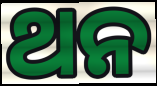
ଥନ